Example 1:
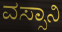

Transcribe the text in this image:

ವಸ್ಸಾನಿ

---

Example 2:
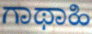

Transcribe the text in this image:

ಗಾಥಾಹಿ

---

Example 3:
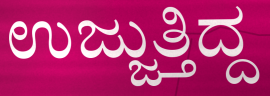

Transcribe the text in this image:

ಉಜ್ಜುತ್ತಿದ್ದ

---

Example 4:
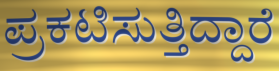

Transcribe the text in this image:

ಪ್ರಕಟಿಸುತ್ತಿದ್ದಾರೆ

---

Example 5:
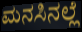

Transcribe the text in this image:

ಮನಸಿನಲ್ಲೆ